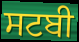
ਸਟਬੀ